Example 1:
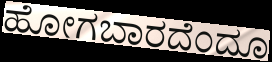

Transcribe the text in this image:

ಹೋಗಬಾರದೆಂದೂ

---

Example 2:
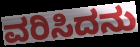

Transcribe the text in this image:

ವರಿಸಿದನು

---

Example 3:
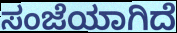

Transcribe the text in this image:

ಸಂಜೆಯಾಗಿದೆ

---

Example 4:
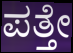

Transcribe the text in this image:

ಪತ್ತೇ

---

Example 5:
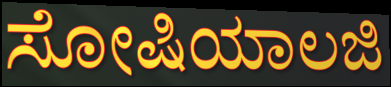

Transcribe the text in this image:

ಸೋಷಿಯಾಲಜಿ